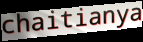
chaitianya